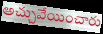
అచ్చువేయించారు